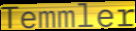
Temmler